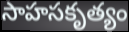
సాహసకృత్యం